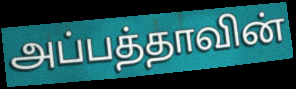
அப்பத்தாவின்